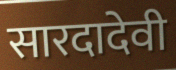
सारदादेवी